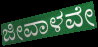
ಜೀವಾಳವೇ